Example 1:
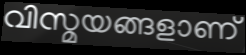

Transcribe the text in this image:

വിസ്മയങ്ങളാണ്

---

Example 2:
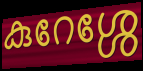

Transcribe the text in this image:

കുറേശ്ശേ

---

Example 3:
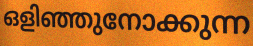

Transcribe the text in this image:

ഒളിഞ്ഞുനോക്കുന്ന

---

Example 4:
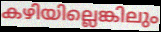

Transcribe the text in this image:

കഴിയില്ലെങ്കിലും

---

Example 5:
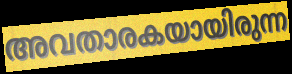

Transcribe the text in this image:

അവതാരകയായിരുന്ന